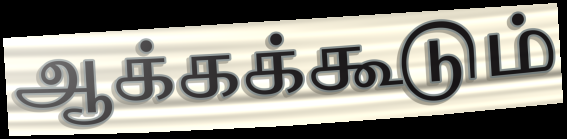
ஆக்கக்கூடும்